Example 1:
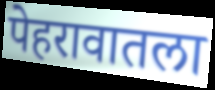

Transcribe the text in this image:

पेहरावातला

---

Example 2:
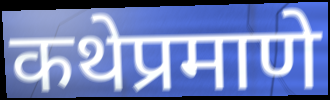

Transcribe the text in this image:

कथेप्रमाणे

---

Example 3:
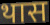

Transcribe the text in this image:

थास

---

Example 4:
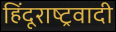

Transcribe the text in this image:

हिंदूराष्ट्रवादी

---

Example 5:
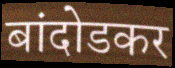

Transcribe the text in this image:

बांदोडकर